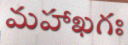
మహాఖగః